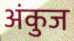
अंकुज